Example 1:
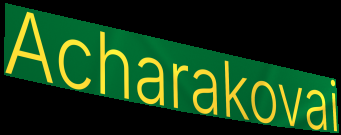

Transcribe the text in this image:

Acharakovai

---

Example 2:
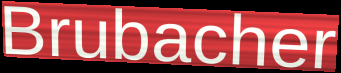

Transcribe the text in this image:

Brubacher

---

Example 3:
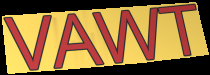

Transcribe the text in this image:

VAWT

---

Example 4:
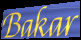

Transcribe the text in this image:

Bakar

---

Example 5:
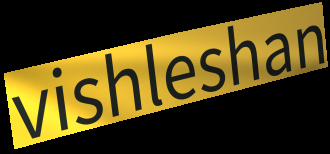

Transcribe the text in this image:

vishleshan